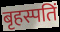
बृहस्पतिं